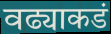
वढ्याकडं